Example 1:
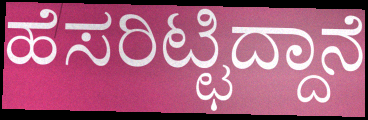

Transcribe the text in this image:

ಹೆಸರಿಟ್ಟಿದ್ದಾನೆ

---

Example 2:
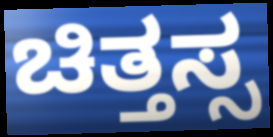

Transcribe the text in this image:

ಚಿತ್ತಸ್ಸ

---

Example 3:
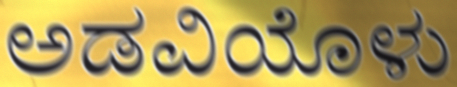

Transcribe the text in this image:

ಅಡವಿಯೊಳು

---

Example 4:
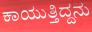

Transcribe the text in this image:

ಕಾಯುತ್ತಿದ್ದನು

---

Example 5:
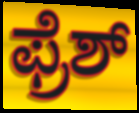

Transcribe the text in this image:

ಫ್ರೆಶ್